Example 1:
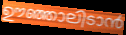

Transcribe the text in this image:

ഊഞ്ഞാലിടാൻ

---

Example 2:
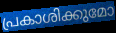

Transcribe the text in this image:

പ്രകാശിക്കുമോ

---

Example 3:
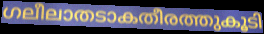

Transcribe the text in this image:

ഗലീലാതടാകതീരത്തുകൂടി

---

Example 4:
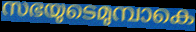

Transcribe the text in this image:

സഭയുടെമുമ്പാകെ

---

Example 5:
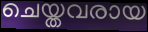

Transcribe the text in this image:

ചെയ്തവരായ